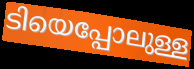
ടിയെപ്പോലുള്ള